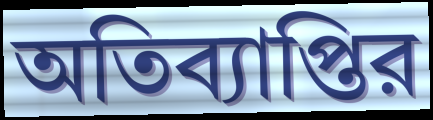
অতিব্যাপ্তির